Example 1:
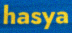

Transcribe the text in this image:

hasya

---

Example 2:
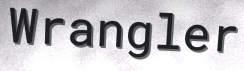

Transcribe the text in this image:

Wrangler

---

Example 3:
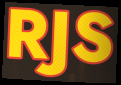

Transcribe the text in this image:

RJS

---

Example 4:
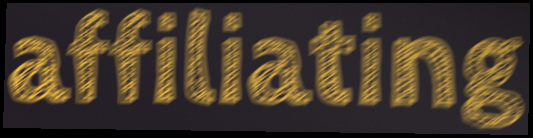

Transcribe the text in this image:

affiliating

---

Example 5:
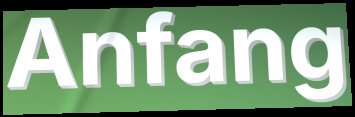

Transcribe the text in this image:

Anfang